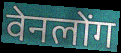
वेनलोंग